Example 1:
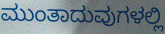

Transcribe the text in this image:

ಮುಂತಾದುವುಗಳಲ್ಲಿ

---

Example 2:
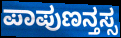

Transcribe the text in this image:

ಪಾಪುಣನ್ತಸ್ಸ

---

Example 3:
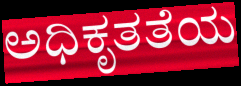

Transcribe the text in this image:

ಅಧಿಕೃತತೆಯ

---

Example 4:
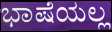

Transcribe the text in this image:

ಭಾಷೆಯಲ್ಲ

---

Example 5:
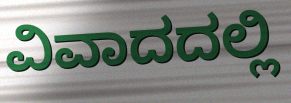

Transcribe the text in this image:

ವಿವಾದದಲ್ಲಿ